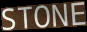
STONE